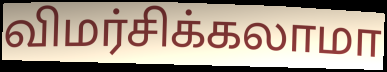
விமர்சிக்கலாமா